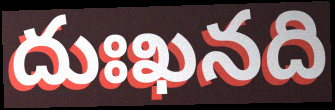
దుఃఖనది